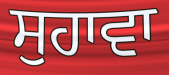
ਸੁਹਾਵਾ